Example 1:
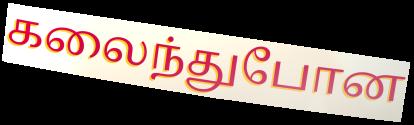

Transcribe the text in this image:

கலைந்துபோன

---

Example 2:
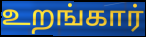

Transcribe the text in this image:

உறங்கார்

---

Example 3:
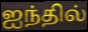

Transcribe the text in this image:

ஐந்தில்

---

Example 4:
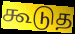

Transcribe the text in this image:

கூடுத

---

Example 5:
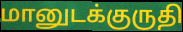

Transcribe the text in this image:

மானுடக்குருதி